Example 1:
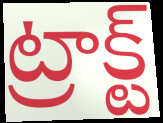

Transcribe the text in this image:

ట్రాక్ట్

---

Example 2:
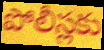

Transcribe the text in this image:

పోలీస్లకు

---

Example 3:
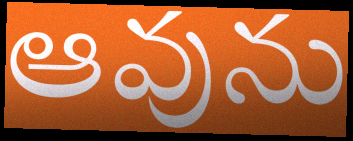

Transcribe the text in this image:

ఆవును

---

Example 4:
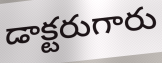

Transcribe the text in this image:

డాక్టరుగారు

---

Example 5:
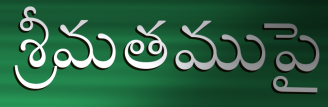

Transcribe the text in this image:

శ్రీమతముపై